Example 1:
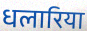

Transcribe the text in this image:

धलारिया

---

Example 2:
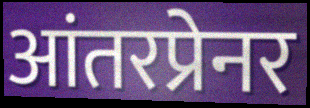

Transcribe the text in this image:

आंतरप्रेनर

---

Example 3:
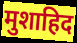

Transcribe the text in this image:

मुशाहिद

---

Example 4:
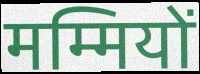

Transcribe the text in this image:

मम्मियों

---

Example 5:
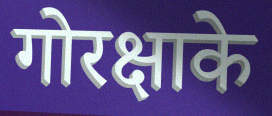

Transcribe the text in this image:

गोरक्षाके